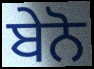
ਬੇਨੋ